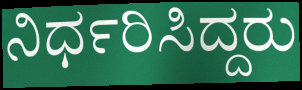
ನಿರ್ಧರಿಸಿದ್ದರು